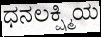
ಧನಲಕ್ಷ್ಮಿಯ